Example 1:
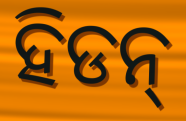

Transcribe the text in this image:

ହିଡନ୍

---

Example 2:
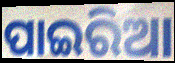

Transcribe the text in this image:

ପାଇରିଆ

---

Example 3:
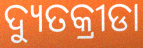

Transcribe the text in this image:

ଦ୍ୟୁତକ୍ରୀଡା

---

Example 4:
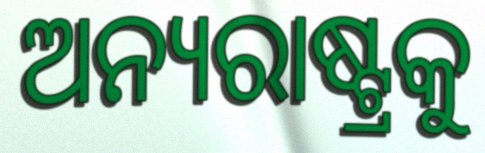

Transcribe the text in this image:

ଅନ୍ୟରାଷ୍ଟ୍ରକୁ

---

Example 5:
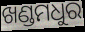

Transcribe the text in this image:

ଖଣ୍ଡମଧୁର